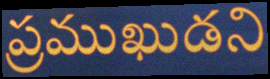
ప్రముఖుడని